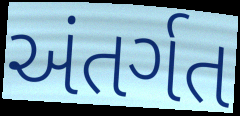
અંતર્ગત